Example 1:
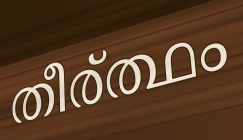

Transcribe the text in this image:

തീര്ത്ഥം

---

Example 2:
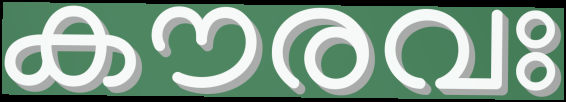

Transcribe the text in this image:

കൗരവഃ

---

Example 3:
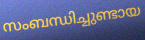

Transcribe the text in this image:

സംബന്ധിച്ചുണ്ടായ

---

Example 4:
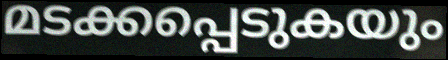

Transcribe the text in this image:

മടക്കപ്പെടുകയും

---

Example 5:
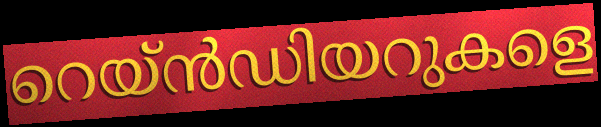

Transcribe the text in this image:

റെയ്ൻഡിയറുകളെ